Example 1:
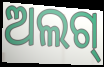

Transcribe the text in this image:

ଅଲଗ୍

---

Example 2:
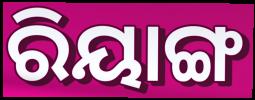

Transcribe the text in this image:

ରିୟାଙ୍ଗ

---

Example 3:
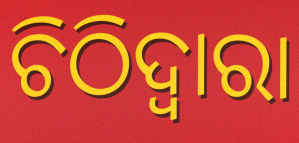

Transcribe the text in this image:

ଚିଠିଦ୍ୱାରା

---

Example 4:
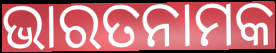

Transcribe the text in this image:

ଭାରତନାମକ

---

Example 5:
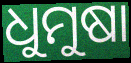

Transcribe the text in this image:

ଧୁମୁଷା